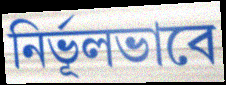
নির্ভূলভাবে